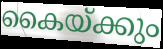
കൈയ്ക്കും